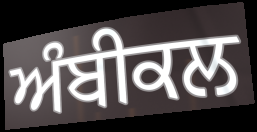
ਅੰਬੀਕਲ